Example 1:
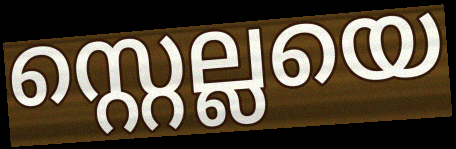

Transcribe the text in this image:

സ്റ്റെല്ലയെ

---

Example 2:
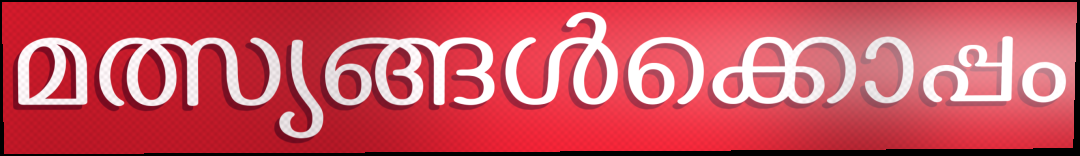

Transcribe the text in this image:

മത്സ്യങ്ങൾക്കൊപ്പം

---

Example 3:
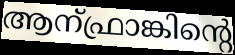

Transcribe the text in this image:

ആന്ഫ്രാങ്കിന്റെ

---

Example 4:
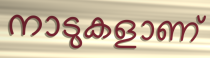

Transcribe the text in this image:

നാടുകളാണ്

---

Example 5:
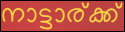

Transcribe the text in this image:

നാട്ടാര്ക്ക്